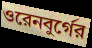
ওরেনবুর্গের